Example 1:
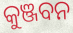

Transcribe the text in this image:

କୁଞ୍ଜବନ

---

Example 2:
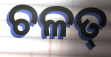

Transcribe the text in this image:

ଚଳତ୍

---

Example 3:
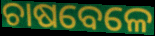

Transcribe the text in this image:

ଚାଷବେଳେ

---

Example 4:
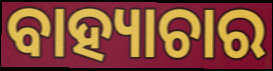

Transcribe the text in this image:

ବାହ୍ୟାଚାର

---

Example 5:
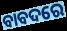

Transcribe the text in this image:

ବାବଦରେ